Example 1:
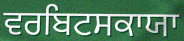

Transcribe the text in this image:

ਵਰਬਿਟਸਕਾਯਾ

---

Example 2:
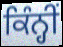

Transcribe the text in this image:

ਕਿੰਨ੍ਹੀਂ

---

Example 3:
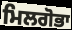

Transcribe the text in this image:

ਮਿਲਗੋਭਾ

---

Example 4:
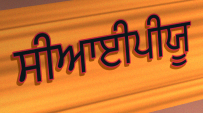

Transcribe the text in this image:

ਸੀਆਈਪੀਯੂ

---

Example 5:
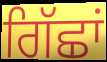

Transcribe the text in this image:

ਗਿੱਛਾਂ